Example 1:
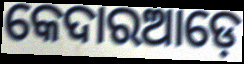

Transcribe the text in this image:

କେଦାରଆଡ଼େ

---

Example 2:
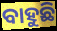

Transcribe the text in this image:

ବାହୁଛି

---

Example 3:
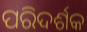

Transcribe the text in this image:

ପରିଦର୍ଶକ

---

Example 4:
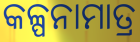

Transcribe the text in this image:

କଳ୍ପନାମାତ୍ର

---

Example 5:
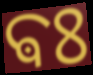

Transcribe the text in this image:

ଵଃ